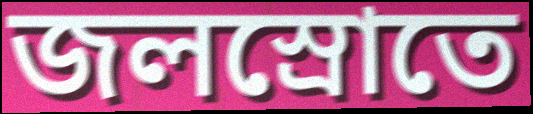
জলস্রোতে